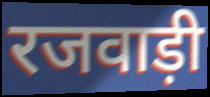
रजवाड़ी